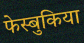
फेस्बुकिया